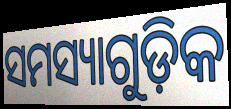
ସମସ୍ୟାଗୁଡ଼ିକ